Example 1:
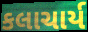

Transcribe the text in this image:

કલાચાર્ય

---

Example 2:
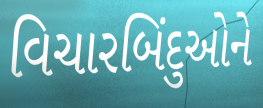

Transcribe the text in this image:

વિચારબિંદુઓને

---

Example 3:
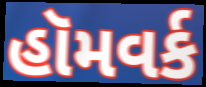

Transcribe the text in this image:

હૉમવર્ક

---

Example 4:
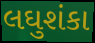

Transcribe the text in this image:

લઘુશંકા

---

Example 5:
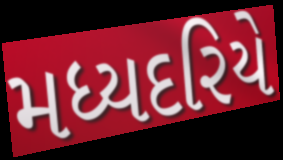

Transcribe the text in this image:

મધ્યદરિયે